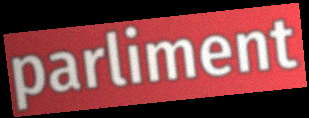
parliment